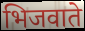
भिजवाते